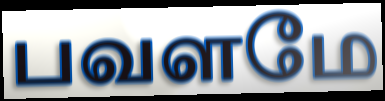
பவளமே